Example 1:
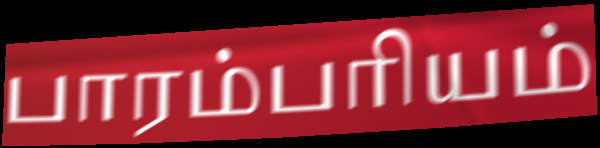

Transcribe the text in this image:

பாரம்பரியம்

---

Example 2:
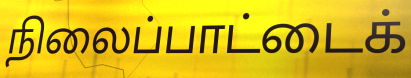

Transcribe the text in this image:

நிலைப்பாட்டைக்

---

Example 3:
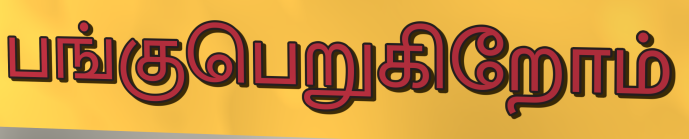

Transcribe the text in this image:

பங்குபெறுகிறோம்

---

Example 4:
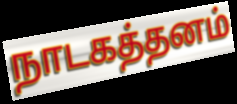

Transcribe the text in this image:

நாடகத்தனம்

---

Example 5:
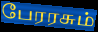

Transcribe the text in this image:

பேரரசும்